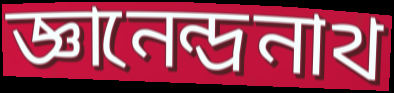
জ্ঞানেন্দ্রনাথ